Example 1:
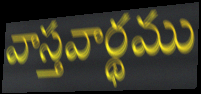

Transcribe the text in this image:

వాస్తవార్థము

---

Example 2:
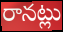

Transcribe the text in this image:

రానట్లు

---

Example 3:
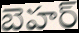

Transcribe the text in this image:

బెహర్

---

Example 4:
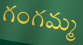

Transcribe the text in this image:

గంగమ్మ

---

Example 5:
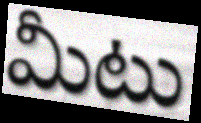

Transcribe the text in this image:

మీటు